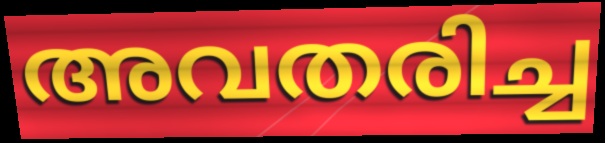
അവതരിച്ച